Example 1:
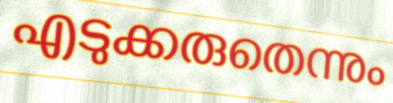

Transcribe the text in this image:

എടുക്കരുതെന്നും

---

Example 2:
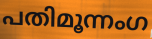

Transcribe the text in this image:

പതിമൂന്നംഗ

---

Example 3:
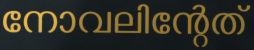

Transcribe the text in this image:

നോവലിന്റേത്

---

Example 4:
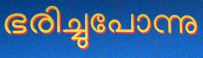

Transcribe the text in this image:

ഭരിച്ചുപോന്നു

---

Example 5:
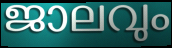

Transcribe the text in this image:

ജാലവും